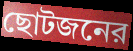
ছোটজনের